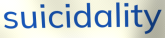
suicidality